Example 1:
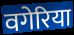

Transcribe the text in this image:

वगेरिया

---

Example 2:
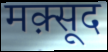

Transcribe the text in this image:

मक़्सूद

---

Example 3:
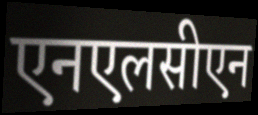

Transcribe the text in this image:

एनएलसीएन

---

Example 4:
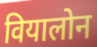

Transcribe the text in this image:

वियालोन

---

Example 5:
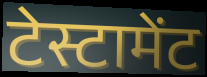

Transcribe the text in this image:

टेस्टामेंट